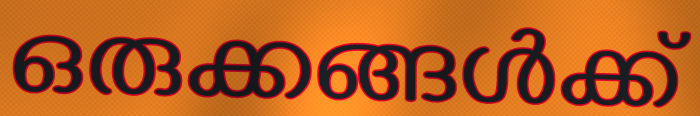
ഒരുക്കങ്ങൾക്ക്